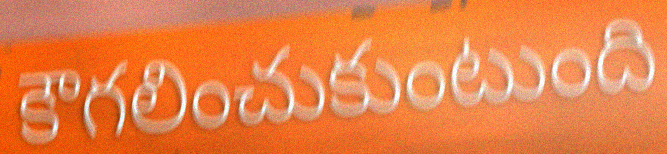
కౌగలించుకుంటుంది